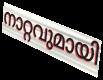
നാറ്റവുമായി